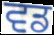
ਵਡ